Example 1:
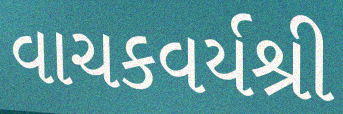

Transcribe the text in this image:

વાચકવર્યશ્રી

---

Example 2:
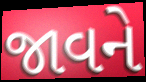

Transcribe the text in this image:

જાવને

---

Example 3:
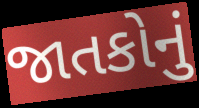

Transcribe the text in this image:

જાતકોનું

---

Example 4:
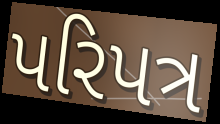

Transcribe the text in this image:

પરિપત્ર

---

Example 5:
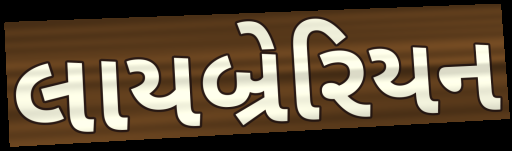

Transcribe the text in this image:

લાયબ્રેરિયન